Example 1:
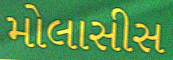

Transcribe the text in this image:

મોલાસીસ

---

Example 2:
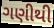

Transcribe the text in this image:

ગણીથી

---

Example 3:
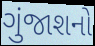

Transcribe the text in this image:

ગુંજાશનો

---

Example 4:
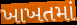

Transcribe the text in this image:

ખાખતમાં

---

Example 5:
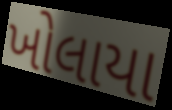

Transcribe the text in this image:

ખોલાયા